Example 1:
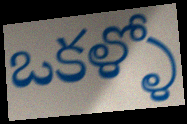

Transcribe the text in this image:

ఒకళ్ళో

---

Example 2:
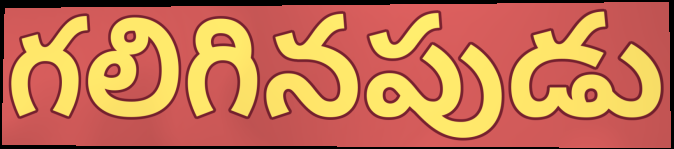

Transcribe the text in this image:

గలిగినపుడు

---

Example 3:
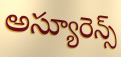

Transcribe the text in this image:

అస్యూరెన్స్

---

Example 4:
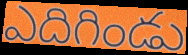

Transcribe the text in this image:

ఎదిగిండు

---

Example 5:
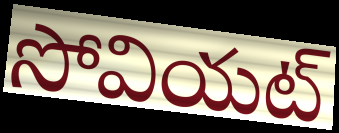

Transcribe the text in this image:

సోవియట్